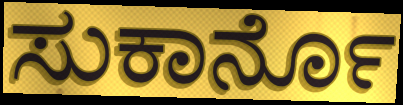
ಸುಕಾರ್ನೊ